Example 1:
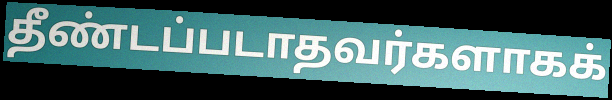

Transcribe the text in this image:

தீண்டப்படாதவர்களாகக்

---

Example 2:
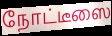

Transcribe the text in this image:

நோட்டீஸை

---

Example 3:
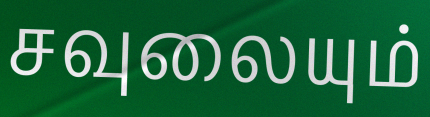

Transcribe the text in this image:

சவுலையும்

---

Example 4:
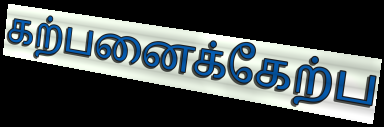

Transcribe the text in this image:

கற்பனைக்கேற்ப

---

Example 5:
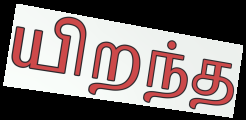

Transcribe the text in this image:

யிறந்த